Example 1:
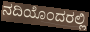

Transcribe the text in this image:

ನದಿಯೊಂದರಲ್ಲಿ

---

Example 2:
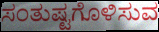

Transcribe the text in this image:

ಸಂತುಷ್ಟಗೊಳಿಸುವ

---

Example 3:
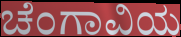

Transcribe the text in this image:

ಚೆಂಗಾವಿಯ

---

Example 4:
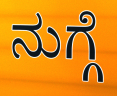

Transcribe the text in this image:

ನುಗ್ಗೆ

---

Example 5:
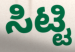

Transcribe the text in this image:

ಸಿಟ್ಟಿ